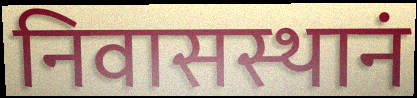
निवासस्थानं